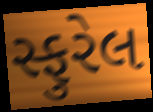
સ્ફુરેલ